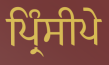
ਪ੍ਰਿੰਸੀਪੇ